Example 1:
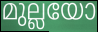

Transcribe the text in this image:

മുല്ലയോ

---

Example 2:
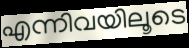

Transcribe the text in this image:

എന്നിവയിലൂടെ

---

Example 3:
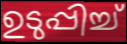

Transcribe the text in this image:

ഉടുപ്പിച്ച്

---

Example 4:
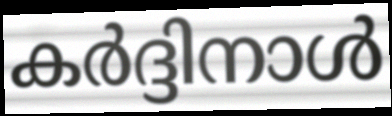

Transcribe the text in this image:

കർദ്ദിനാൾ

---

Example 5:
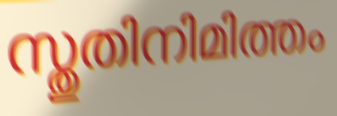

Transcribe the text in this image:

സ്തുതിനിമിത്തം